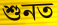
শুনত